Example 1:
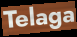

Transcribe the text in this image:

Telaga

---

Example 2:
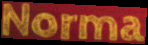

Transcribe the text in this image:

Norma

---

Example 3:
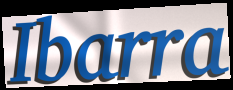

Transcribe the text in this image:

Ibarra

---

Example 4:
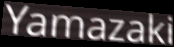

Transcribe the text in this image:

Yamazaki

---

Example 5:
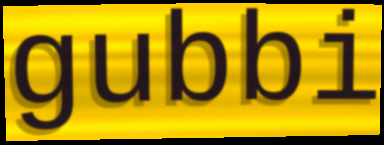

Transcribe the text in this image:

gubbi